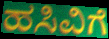
ಹಸಿವಿಗೆ